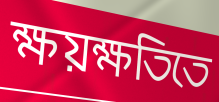
ক্ষয়ক্ষতিতে